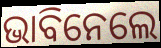
ଭାବିନେଲେ